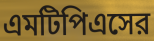
এমটিপিএসের